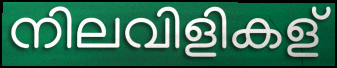
നിലവിളികള്